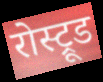
रोस्ट्रूड